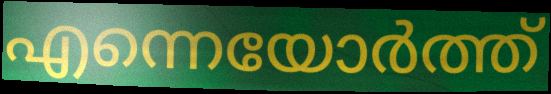
എന്നെയോർത്ത്